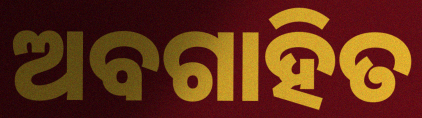
ଅବଗାହିତ